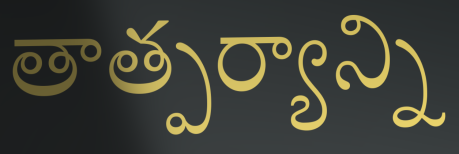
తాత్పర్యాన్ని